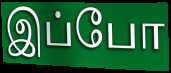
இப்போ